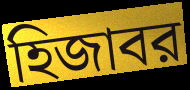
হিজাবর